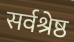
सर्वश्रेष्ठ